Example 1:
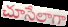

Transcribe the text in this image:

చూసేలాగా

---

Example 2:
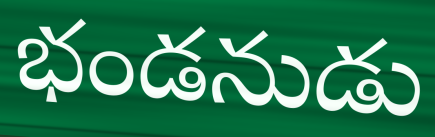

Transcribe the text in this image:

భండనుడు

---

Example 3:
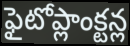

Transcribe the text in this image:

ఫైటోప్లాంక్టన్ల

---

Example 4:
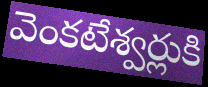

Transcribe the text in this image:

వెంకటేశ్వర్లుకి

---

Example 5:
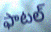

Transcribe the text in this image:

ఫాటల్